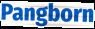
Pangborn